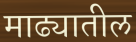
माढ्यातील